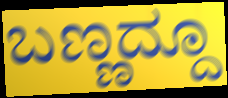
ಬಣ್ಣದ್ದೂ